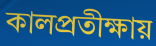
কালপ্রতীক্ষায়